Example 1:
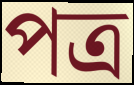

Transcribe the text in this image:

পত্র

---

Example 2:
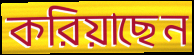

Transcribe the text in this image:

করিয়াছেন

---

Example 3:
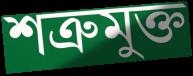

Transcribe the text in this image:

শত্রুমুক্ত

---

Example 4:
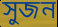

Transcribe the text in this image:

সুজন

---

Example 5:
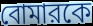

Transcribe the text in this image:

বোমারকে